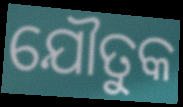
ଯୌତୁକ